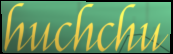
huchchu